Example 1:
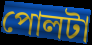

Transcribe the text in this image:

পোলটা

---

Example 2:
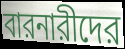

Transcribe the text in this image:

বারনারীদের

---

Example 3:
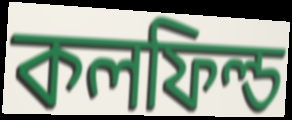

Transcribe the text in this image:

কলফিল্ড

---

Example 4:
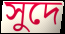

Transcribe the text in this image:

সুদে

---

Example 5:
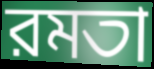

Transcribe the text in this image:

রমতা